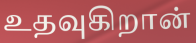
உதவுகிறான்